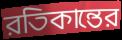
রতিকান্তের